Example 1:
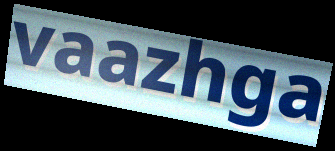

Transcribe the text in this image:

vaazhga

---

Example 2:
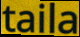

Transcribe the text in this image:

taila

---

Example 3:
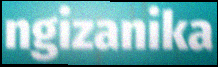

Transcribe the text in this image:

ngizanika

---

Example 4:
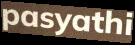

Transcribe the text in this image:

pasyathi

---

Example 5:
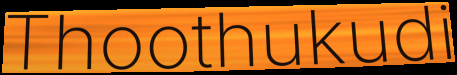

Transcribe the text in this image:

Thoothukudi